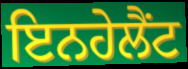
ਇਨਹੇਲੈਂਟ